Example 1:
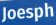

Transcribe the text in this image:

Joesph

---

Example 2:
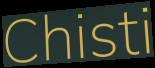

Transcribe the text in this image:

Chisti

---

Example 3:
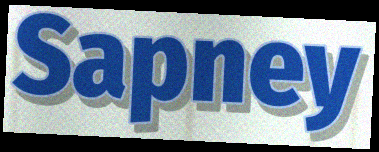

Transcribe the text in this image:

Sapney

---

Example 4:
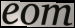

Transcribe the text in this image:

eom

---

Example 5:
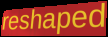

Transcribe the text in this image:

reshaped